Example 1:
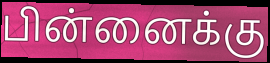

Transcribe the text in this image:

பின்னைக்கு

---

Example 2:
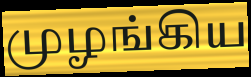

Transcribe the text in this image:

முழங்கிய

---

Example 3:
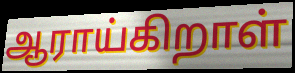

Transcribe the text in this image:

ஆராய்கிறாள்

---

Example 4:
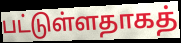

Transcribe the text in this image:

பட்டுள்ளதாகத்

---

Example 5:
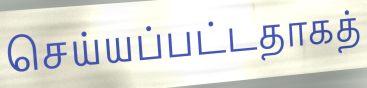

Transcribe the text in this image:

செய்யப்பட்டதாகத்